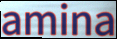
amina